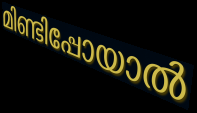
മിണ്ടിപ്പോയാൽ